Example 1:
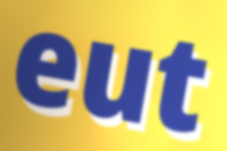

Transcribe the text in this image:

eut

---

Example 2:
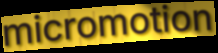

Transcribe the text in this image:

micromotion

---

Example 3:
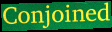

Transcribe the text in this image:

Conjoined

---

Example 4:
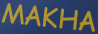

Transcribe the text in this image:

MAKHA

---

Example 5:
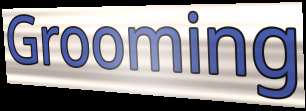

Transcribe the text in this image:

Grooming